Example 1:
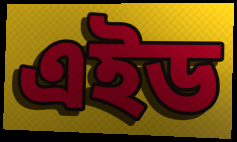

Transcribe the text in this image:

এইড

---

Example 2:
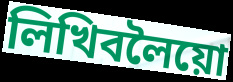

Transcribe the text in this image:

লিখিবলৈয়ো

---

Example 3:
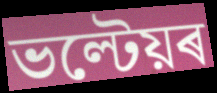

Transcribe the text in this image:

ভল্টেয়ৰ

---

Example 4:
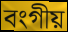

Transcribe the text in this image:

বংগীয়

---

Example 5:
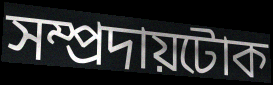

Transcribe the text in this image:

সম্প্ৰদায়টোক